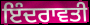
ਇੰਦਰਾਵਤੀ